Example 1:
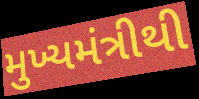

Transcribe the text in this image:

મુખ્યમંત્રીથી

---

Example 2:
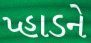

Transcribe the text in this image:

પ્હાડને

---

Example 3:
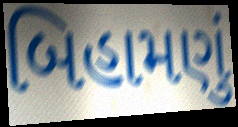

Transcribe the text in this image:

બિહામણું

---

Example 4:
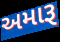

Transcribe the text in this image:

અમારૂ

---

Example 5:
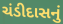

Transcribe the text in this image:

ચંડીદાસનું